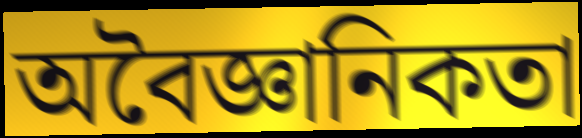
অবৈজ্ঞানিকতা